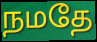
நமதே